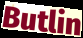
Butlin